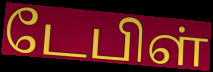
டேபிள்